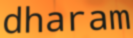
dharam